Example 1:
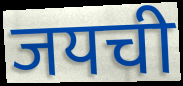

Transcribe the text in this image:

जयची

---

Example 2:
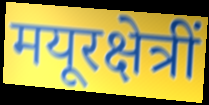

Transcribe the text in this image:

मयूरक्षेत्रीं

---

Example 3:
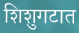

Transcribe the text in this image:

शिशुगटात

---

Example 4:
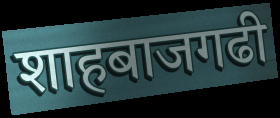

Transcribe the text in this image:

शाहबाजगढी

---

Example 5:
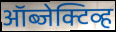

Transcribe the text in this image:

ऑब्जेक्टिव्ह